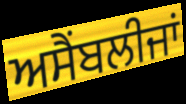
ਅਸੈਂਬਲੀਜਾਂ